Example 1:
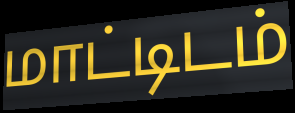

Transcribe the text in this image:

மாட்டிடம்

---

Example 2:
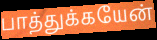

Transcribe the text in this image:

பாத்துக்கயேன்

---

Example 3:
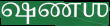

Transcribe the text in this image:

ஷணஶ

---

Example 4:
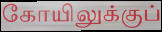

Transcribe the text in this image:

கோயிலுக்குப்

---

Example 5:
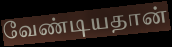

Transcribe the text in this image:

வேண்டியதான்